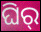
ଘିର୍